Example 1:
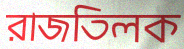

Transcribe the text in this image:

রাজতিলক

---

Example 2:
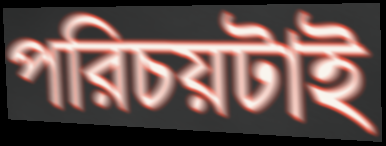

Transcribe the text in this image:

পরিচয়টাই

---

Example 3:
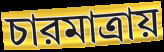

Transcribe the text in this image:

চারমাত্রায়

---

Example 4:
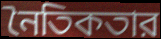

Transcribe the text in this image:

নৈতিকতার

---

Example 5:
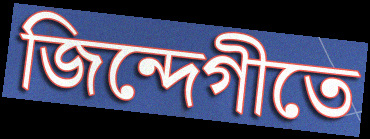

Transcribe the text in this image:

জিন্দেগীতে